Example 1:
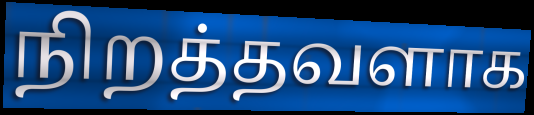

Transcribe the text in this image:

நிறத்தவளாக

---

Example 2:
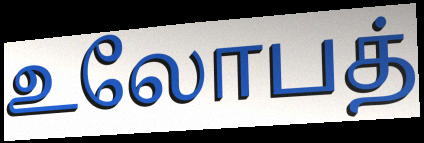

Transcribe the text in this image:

உலோபத்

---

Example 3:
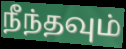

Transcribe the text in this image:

நீந்தவும்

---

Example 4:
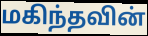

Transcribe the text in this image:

மகிந்தவின்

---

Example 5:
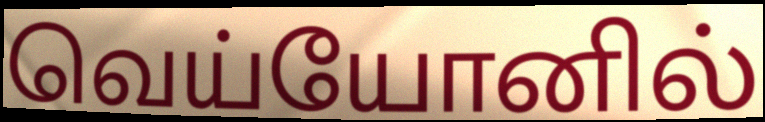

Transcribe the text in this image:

வெய்யோனில்